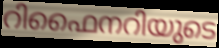
റിഫൈനറിയുടെ